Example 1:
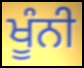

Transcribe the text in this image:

ਖੂੰਨੀ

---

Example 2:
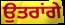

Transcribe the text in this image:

ਉਤਰਾਂਗੇ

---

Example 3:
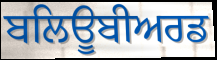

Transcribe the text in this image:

ਬਲਿਊਬੀਅਰਡ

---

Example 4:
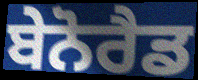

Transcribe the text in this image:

ਬੇਨੋਰੈਡ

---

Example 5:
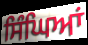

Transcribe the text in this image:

ਸਿੰਘਿਆਂ